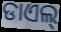
ଡାଏଲ୍